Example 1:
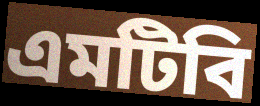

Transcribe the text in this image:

এমটিবি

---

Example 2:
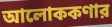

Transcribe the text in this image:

আলোককণার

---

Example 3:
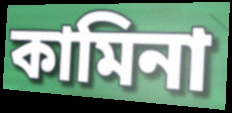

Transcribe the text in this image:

কামিনা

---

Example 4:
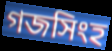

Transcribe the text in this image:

গজসিংহ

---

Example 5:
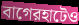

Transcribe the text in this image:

বাগেরহাটেও